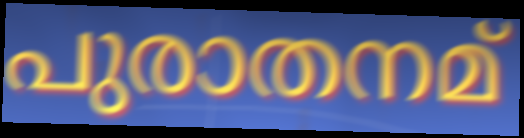
പുരാതനമ്